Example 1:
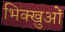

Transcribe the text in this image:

भिक्खुओं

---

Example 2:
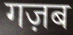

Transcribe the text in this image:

गज़ब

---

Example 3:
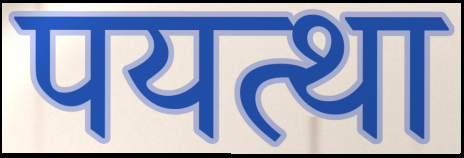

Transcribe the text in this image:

पयत्था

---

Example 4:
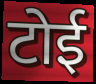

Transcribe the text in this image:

टोई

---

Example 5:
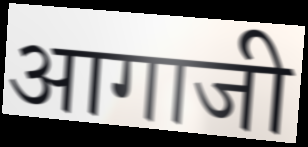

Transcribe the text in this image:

आगाजी